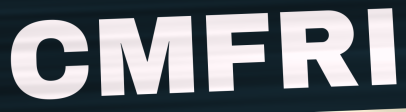
CMFRI